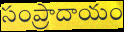
సంప్రాదాయం